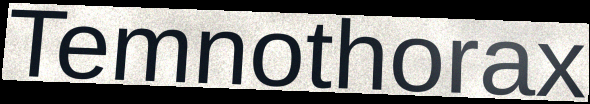
Temnothorax